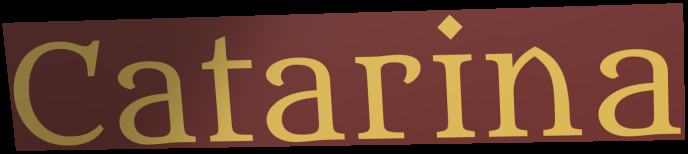
Catarina